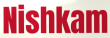
Nishkam